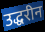
उद्धरीन